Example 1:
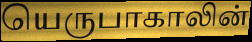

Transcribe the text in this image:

யெருபாகாலின்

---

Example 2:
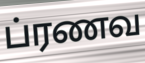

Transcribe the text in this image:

ப்ரணவ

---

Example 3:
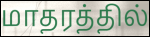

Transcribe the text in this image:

மாதரத்தில்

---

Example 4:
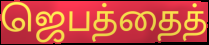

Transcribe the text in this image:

ஜெபத்தைத்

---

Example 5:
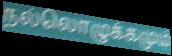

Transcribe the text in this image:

நல்லொழுக்கமும்